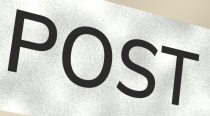
POST